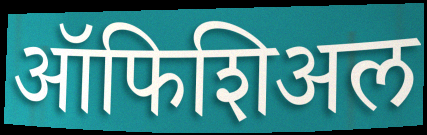
ऑफिशिअल